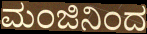
ಮಂಜಿನಿಂದ